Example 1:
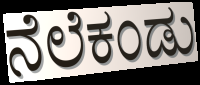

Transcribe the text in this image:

ನೆಲೆಕಂಡು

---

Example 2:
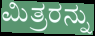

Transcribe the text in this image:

ಮಿತ್ರರನ್ನು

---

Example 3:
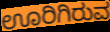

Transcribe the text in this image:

ಊರಿಗಿರುವ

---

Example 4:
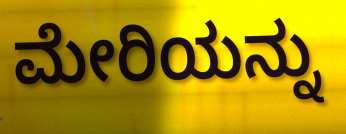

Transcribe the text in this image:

ಮೇರಿಯನ್ನು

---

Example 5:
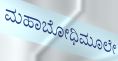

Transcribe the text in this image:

ಮಹಾಬೋಧಿಮೂಲೇ